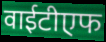
वाईटीएफ